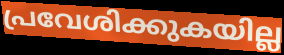
പ്രവേശിക്കുകയില്ല